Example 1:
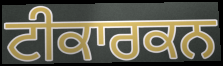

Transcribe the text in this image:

ਟੀਕਾਰਕਨ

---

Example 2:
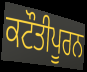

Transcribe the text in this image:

ਕਟੌਤੀਪੂਰਨ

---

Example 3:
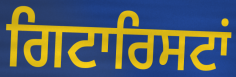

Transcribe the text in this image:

ਗਿਟਾਰਿਸਟਾਂ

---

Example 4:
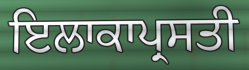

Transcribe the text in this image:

ਇਲਾਕਾਪ੍ਰਸਤੀ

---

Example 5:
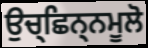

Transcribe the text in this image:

ਉਚ੍ਛਿਨ੍ਨਮੂਲੋ